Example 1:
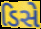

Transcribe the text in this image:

ડિસે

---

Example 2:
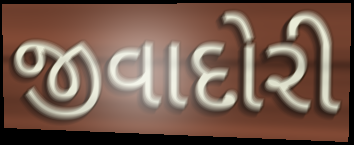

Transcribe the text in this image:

જીવાદોરી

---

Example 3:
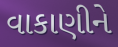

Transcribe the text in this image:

વાકાણીને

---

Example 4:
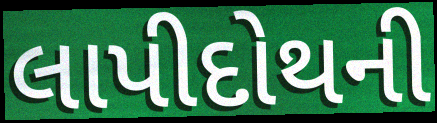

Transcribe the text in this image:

લાપીદોથની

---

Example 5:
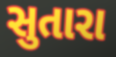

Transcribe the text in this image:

સુતારા